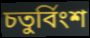
চতুৰ্বিংশ